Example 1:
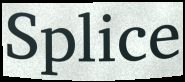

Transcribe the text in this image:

Splice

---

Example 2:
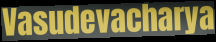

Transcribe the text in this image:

Vasudevacharya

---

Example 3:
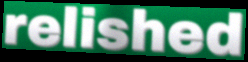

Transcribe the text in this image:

relished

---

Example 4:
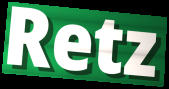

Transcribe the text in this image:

Retz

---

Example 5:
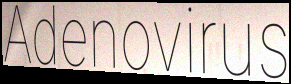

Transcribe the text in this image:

Adenovirus